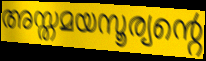
അസ്തമയസൂര്യന്റെ